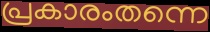
പ്രകാരംതന്നെ